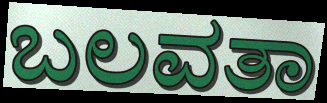
ಬಲವತಾ